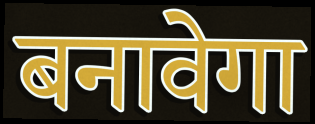
बनावेगा